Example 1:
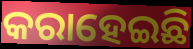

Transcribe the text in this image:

କରାହେଇଛି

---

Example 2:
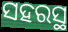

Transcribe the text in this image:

ସହରସ୍ଥ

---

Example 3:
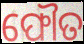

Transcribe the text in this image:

ଫୌତ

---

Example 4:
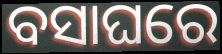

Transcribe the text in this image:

ବସାଘରେ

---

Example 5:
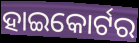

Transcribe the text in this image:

ହାଇକୋର୍ଟର